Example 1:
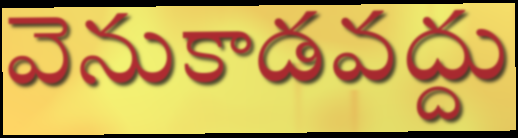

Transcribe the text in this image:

వెనుకాడవద్దు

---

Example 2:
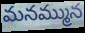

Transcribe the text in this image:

మనమ్మున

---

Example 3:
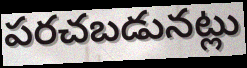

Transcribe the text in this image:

పరచబడునట్లు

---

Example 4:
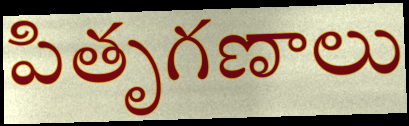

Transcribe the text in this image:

పితృగణాలు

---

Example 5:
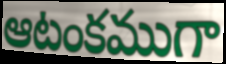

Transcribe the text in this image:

ఆటంకముగా